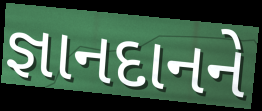
જ્ઞાનદાનને